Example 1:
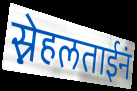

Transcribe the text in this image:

स्नेहलताईनं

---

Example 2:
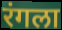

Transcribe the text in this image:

रंगला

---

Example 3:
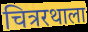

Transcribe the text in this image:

चित्ररथाला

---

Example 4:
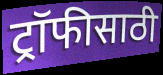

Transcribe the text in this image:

ट्रॉफीसाठी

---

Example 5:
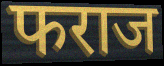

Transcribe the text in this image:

फराज